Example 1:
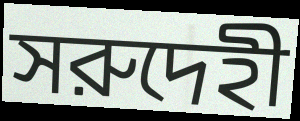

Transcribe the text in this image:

সরুদেহী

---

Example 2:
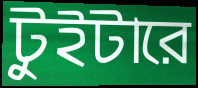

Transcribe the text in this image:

টুইটারে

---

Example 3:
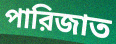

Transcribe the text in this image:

পারিজাত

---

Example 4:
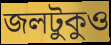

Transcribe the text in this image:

জলটুকুও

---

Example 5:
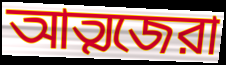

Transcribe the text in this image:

আত্মজেরা